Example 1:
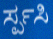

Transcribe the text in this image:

ರ್ಸ್ಪಸಿ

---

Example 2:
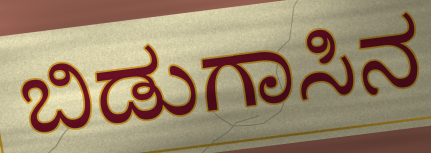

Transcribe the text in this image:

ಬಿಡುಗಾಸಿನ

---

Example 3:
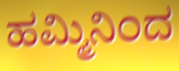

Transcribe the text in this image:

ಹಮ್ಮಿನಿಂದ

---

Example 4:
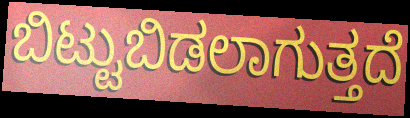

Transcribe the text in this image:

ಬಿಟ್ಟುಬಿಡಲಾಗುತ್ತದೆ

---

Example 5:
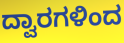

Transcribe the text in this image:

ದ್ವಾರಗಳಿಂದ